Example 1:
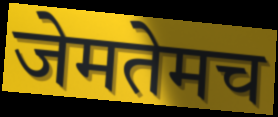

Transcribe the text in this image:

जेमतेमच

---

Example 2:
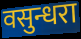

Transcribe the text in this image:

वसुन्धरा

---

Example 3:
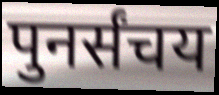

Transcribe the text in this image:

पुनर्संचय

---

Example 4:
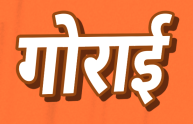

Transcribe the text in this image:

गोराई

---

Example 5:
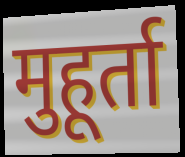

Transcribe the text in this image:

मुहूर्ता